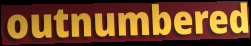
outnumbered